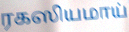
ரகஸியமாய்